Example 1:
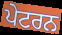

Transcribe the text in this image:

ਪੇਟਰਨ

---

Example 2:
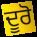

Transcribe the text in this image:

ਦੂਰੋ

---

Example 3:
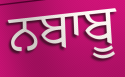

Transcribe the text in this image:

ਨਬਾਬੂ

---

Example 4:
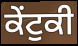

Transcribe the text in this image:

ਕੇਂਟੁਕੀ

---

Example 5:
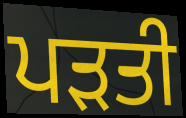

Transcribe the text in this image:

ਪੜਤੀ